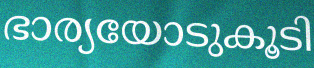
ഭാര്യയോടുകൂടി